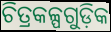
ଚିତ୍ରକଳ୍ପଗୁଡ଼ିକ